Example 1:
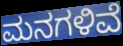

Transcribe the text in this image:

ಮನಗಳಿವೆ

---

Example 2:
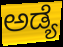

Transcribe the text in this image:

ಅಡ್ಯೆ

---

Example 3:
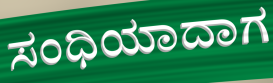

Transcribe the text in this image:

ಸಂಧಿಯಾದಾಗ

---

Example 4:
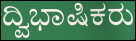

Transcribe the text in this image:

ದ್ವಿಭಾಷಿಕರು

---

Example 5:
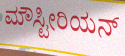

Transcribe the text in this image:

ಮೌಸ್ಟೀರಿಯನ್